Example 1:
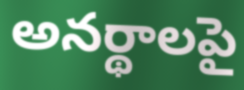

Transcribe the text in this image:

అనర్థాలపై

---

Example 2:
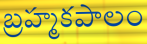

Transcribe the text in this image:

బ్రహ్మకపాలం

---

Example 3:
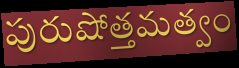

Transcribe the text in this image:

పురుషోత్తమత్వం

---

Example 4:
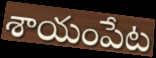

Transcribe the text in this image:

శాయంపేట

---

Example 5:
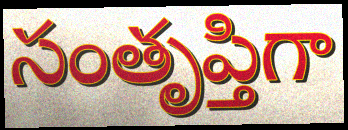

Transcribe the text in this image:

సంతృప్తిగా